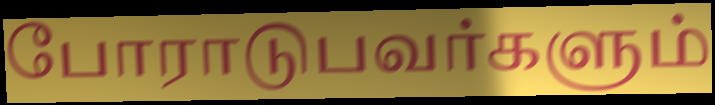
போராடுபவர்களும்